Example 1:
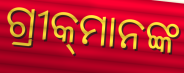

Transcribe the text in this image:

ଗ୍ରୀକ୍‌ମାନଙ୍କ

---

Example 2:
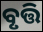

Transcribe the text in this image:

ବୃତ୍ତି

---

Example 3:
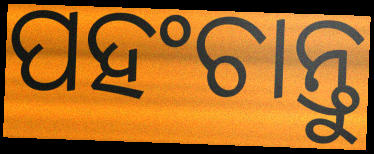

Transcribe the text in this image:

ପହଂଚାନ୍ତୁ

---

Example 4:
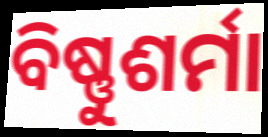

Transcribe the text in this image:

ବିଷ୍ଣୁଶର୍ମା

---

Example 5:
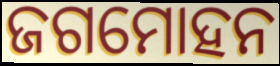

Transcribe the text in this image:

ଜଗମୋହନ